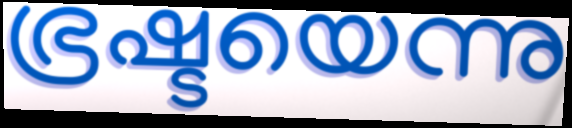
ഭ്രഷ്ടയെന്നു